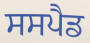
ਸਸਪੈਡ